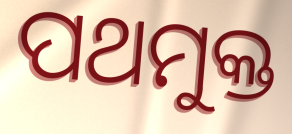
ପଥମୁକ୍ତ